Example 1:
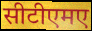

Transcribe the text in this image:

सीटीएमए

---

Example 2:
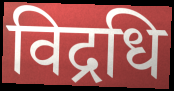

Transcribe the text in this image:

विद्रधि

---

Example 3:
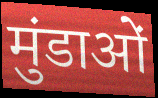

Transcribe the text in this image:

मुंडाओं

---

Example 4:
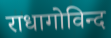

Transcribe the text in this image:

राधागोविन्द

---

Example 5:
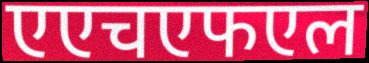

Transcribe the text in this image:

एएचएफएल